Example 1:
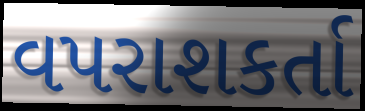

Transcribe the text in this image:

વપરાશકર્તા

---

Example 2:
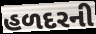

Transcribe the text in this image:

હળદરની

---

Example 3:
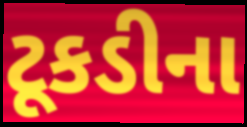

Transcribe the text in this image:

ટૂકડીના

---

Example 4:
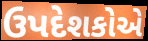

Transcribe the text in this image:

ઉપદેશકોએ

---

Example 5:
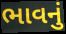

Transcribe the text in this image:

ભાવનું